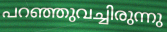
പറഞ്ഞുവച്ചിരുന്നു